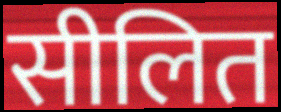
सीलित